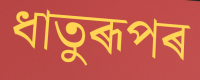
ধাতুৰূপৰ